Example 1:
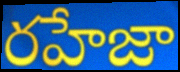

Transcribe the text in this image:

రహేజా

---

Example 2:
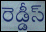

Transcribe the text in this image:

రెడ్డీస్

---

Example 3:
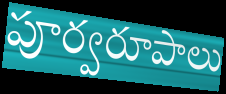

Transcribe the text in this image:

పూర్వరూపాలు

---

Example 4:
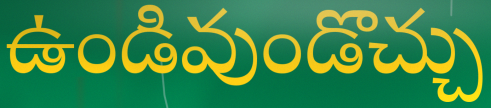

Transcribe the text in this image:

ఉండివుండొచ్చు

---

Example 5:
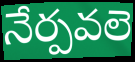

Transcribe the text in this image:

నేర్పవలె